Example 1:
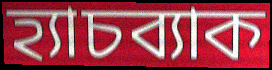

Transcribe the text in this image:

হ্যাচব্যাক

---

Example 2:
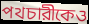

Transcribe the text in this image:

পথচারীকেও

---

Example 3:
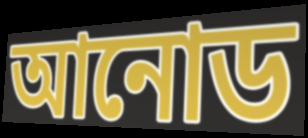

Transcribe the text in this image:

আনোড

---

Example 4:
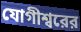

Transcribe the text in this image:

যোগীশ্বরের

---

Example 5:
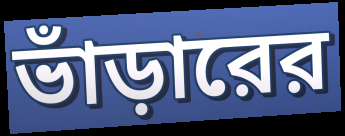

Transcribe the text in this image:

ভাঁড়ারের